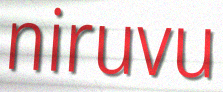
niruvu